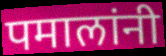
पमालांनी